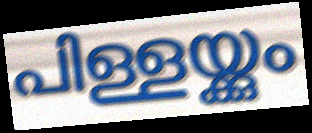
പിള്ളയ്ക്കും